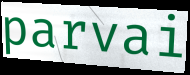
parvai